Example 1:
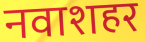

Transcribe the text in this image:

नवाशहर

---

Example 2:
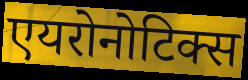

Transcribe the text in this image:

एयरोनोटिक्स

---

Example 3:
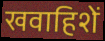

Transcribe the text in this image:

खवाहिशें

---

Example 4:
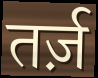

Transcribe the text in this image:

तर्ज़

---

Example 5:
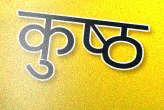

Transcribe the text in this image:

कुष्‍ठ